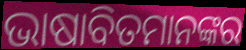
ଭାଷାବିତମାନଙ୍କର